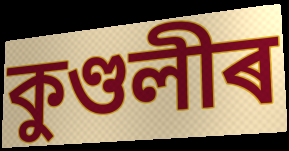
কুণ্ডলীৰ